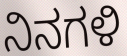
ನಿನಗಳಿ